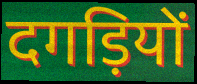
दगड़ियों